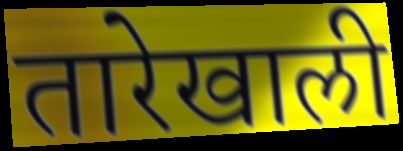
तारेखाली